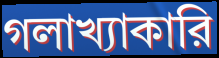
গলাখ্যাকারি